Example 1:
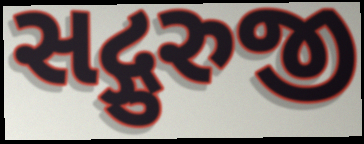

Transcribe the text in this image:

સદ્ગુરુજી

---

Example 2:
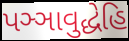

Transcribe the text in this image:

પઞ્ઞાવુદ્ધેહિ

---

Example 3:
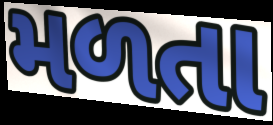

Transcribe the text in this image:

મળતા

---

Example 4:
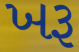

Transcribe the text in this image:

ખરૂ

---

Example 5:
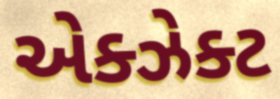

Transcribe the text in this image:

એક્ઝેક્ટ